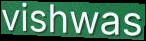
vishwas